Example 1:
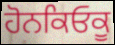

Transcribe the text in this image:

ਹੋਨਕਿਓਕੂ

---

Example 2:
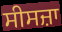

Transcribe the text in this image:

ਸੀਸਜ਼ਾ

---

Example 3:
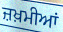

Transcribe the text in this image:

ਜ਼ਖ਼ਮੀਆਂ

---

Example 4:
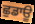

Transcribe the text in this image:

ਛੁਡਾਊ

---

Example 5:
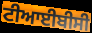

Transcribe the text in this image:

ਟੀਆਈਬੀਸੀ